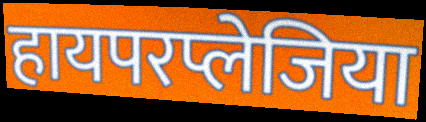
हायपरप्लेजिया